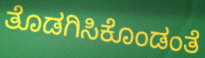
ತೊಡಗಿಸಿಕೊಂಡಂತೆ